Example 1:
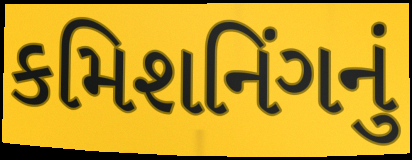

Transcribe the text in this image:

કમિશનિંગનું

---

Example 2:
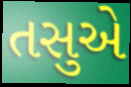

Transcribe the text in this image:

તસુએ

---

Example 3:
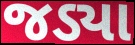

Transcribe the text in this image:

જડ્યા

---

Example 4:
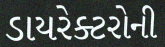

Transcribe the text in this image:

ડાયરેક્ટરોની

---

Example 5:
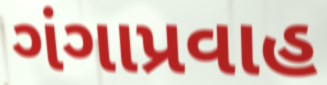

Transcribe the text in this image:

ગંગાપ્રવાહ